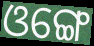
ଓଙ୍ଗେ